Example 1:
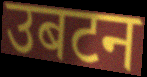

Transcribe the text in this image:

उबटन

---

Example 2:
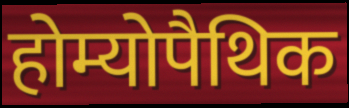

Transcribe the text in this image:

होम्‍योपैथिक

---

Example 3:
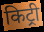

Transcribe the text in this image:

किट्री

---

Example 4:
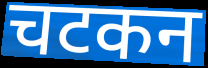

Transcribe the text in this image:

चटकन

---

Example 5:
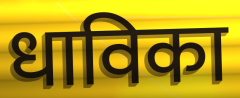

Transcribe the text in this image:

धाविका